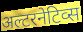
अल्टरनेटिव्स